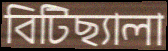
বিটিছ্যালা